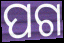
ପଗ